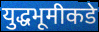
युद्धभूमीकडे